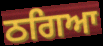
ਠਗਿਆ